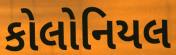
કોલોનિયલ